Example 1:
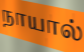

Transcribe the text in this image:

நாயால்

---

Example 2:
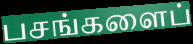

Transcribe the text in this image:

பசங்களைப்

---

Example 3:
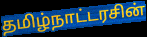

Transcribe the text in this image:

தமிழ்நாட்டரசின்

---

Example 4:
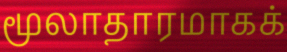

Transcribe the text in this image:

மூலாதாரமாகக்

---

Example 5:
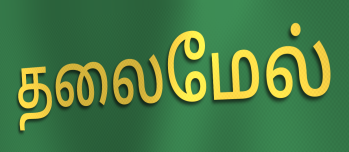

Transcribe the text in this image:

தலைமேல்